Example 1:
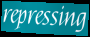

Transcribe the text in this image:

repressing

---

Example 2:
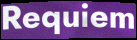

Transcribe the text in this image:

Requiem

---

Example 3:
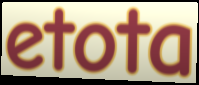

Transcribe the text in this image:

etota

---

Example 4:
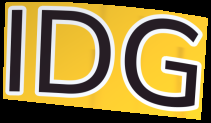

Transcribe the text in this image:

IDG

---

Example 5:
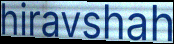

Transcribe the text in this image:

hiravshah